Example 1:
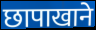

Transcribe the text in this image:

छापाखाने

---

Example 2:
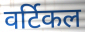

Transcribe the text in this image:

वर्टिकल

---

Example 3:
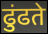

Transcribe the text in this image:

ढुंढते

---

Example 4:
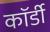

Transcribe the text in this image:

कॉर्डी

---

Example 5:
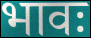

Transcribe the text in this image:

भावः